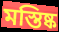
মস্তিষ্ক